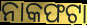
ନାକଫଟା